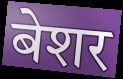
बेशर